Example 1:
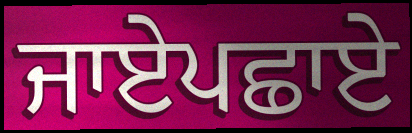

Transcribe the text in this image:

ਜਾਏਪਛਾਏ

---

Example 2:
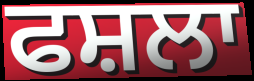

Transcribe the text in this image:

ਫਸ਼ਲਾ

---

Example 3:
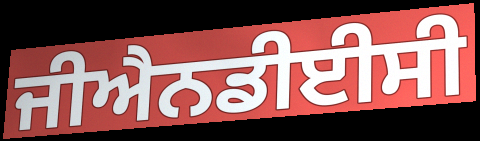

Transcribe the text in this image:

ਜੀਐਨਡੀਈਸੀ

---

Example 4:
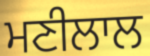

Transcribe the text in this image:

ਮਣੀਲਾਲ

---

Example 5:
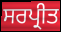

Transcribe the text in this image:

ਸਰਪ੍ਰੀਤ